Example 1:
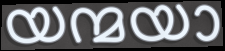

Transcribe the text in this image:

യന്മയാ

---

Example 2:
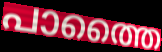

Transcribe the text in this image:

പാത്തൈ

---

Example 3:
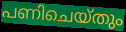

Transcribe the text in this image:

പണിചെയ്തും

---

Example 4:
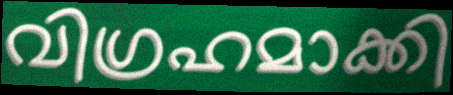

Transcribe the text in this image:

വിഗ്രഹമാക്കി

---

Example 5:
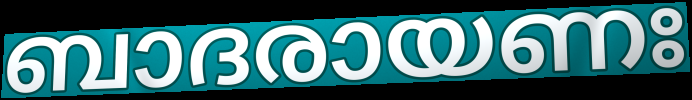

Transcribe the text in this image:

ബാദരായണഃ